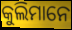
କୁଲିମାନେ